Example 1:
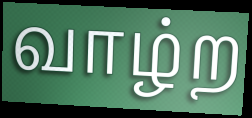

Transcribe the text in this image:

வாழ்ற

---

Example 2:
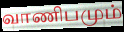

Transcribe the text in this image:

வாணிபமும்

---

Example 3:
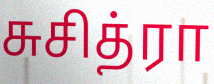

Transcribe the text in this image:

சுசித்ரா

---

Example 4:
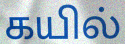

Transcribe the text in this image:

கயில்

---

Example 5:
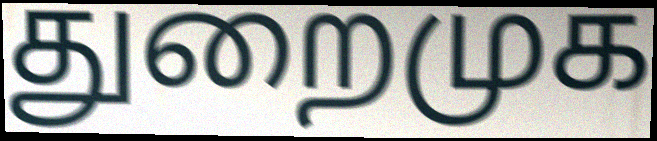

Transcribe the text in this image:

துறைமுக